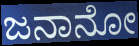
ಜನಾನೋ